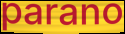
parano